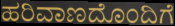
ಹರಿವಾಣದೊಂದಿಗೆ